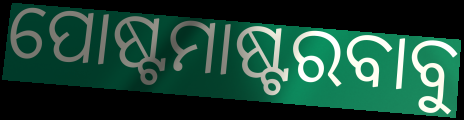
ପୋଷ୍ଟମାଷ୍ଟରବାବୁ